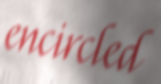
encircled